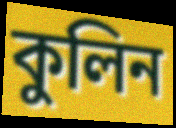
কুলিন